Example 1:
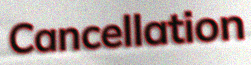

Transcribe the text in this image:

Cancellation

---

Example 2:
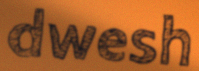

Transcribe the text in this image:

dwesh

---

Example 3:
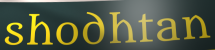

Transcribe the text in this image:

shodhtan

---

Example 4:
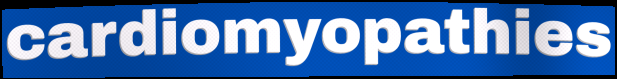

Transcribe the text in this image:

cardiomyopathies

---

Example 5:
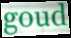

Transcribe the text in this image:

goud